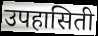
उपहासिती